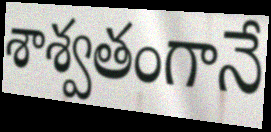
శాశ్వతంగానే